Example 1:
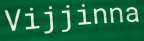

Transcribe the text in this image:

Vijjinna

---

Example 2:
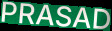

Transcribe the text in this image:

PRASAD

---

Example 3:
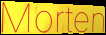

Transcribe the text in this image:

Morten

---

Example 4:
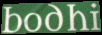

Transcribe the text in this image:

bodhi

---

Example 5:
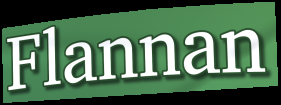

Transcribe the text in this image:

Flannan